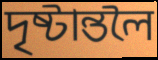
দৃষ্টান্তলৈ